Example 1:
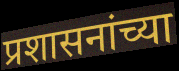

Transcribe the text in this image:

प्रशासनांच्या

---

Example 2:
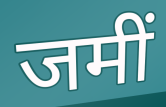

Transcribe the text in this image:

जमीं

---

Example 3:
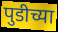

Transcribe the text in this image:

पुडीच्या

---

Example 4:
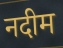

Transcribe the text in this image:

नदीम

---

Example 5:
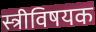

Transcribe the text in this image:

स्त्रीविषयक